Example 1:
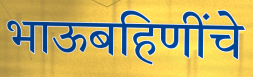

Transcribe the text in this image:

भाऊबहिणींचे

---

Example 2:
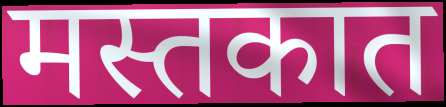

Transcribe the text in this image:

मस्तकात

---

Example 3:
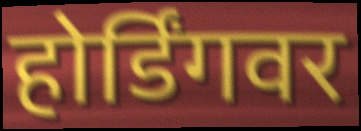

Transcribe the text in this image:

होर्डिंगवर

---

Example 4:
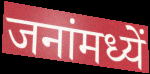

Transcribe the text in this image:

जनांमध्यें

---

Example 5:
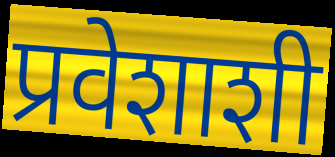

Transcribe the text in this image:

प्रवेशाशी